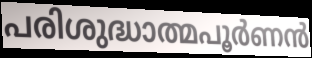
പരിശുദ്ധാത്മപൂർണൻ